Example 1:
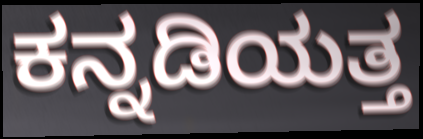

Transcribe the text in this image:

ಕನ್ನಡಿಯತ್ತ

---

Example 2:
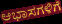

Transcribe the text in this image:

ಆಭಾಸಗಳಿಗೆ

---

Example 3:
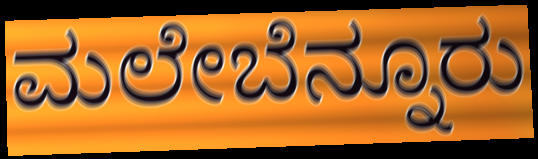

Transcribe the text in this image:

ಮಲೇಬೆನ್ನೂರು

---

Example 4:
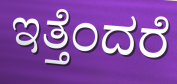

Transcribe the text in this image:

ಇತ್ತೆಂದರೆ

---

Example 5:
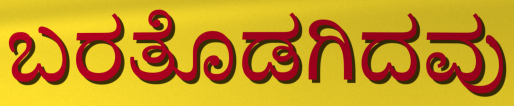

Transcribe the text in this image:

ಬರತೊಡಗಿದವು